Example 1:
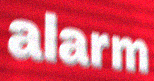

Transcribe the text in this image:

alarm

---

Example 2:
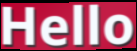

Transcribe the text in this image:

Hello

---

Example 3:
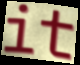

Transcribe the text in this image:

it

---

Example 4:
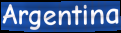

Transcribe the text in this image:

Argentina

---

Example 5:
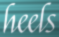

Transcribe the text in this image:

heels